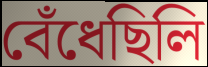
বেঁধেছিলি